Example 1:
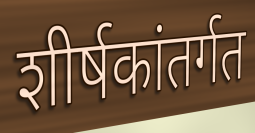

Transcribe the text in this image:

शीर्षकांतर्गत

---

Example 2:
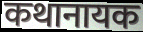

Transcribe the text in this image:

कथानायक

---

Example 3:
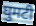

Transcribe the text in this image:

घुमटी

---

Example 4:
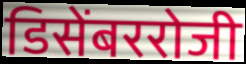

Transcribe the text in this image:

डिसेंबररोजी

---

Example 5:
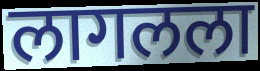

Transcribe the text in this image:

लागलला